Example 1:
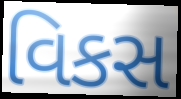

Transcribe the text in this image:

વિકસ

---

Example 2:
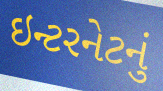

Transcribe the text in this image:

ઇન્ટરનેટનું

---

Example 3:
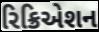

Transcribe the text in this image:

રિક્રિએશન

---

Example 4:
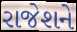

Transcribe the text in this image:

રાજેશને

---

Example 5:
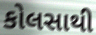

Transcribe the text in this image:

કોલસાથી